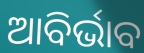
ଆବିର୍ଭାବ